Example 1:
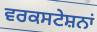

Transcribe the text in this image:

ਵਰਕਸਟੇਸ਼ਨਾਂ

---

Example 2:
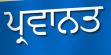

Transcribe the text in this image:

ਪ੍ਰਵਾਨਤ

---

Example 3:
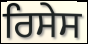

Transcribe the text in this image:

ਰਿਸੇਸ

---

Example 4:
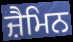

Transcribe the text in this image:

ਜ਼ੈਮਿਨ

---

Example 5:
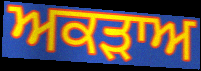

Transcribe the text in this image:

ਅਕੜਾਅ